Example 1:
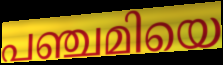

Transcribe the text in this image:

പഞ്ചമിയെ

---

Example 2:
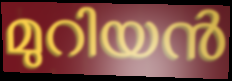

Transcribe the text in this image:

മുറിയൻ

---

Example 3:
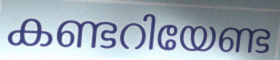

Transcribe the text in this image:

കണ്ടറിയേണ്ട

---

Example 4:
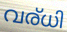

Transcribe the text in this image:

വര്ധി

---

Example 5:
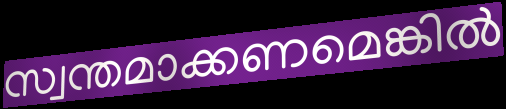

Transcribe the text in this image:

സ്വന്തമാക്കണമെങ്കിൽ